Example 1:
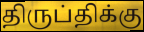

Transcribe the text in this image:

திருப்திக்கு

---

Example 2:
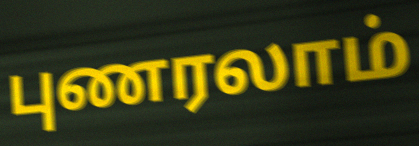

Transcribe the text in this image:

புணரலாம்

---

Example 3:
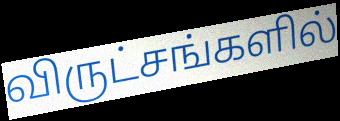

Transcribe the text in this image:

விருட்சங்களில்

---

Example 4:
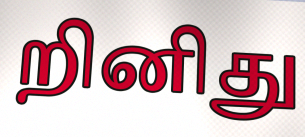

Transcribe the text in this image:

றினிது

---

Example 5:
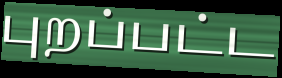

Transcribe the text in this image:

புறப்பட்ட